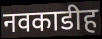
नवकाडीह